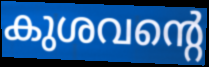
കുശവന്റെ